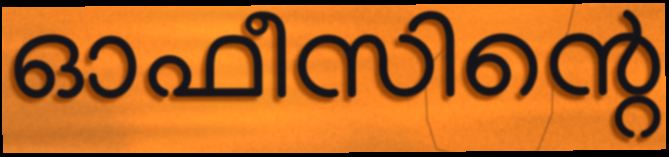
ഓഫീസിന്റെ